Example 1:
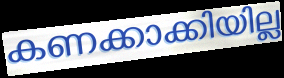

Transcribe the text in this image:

കണക്കാക്കിയില്ല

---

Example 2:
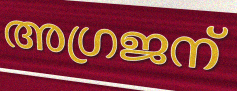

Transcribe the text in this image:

അഗ്രജന്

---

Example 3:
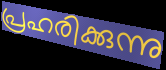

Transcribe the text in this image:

പ്രഹരിക്കുന്നു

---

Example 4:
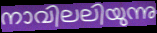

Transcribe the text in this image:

നാവിലലിയുന്നു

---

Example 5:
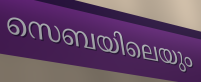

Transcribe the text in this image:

സെബയിലെയും